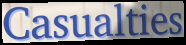
Casualties